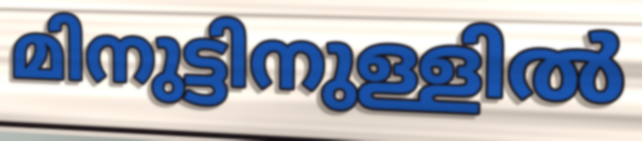
മിനുട്ടിനുള്ളിൽ